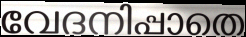
വേദനിപ്പാതെ